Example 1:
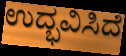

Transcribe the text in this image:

ಉದ್ಭವಿಸಿದೆ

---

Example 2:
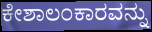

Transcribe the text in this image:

ಕೇಶಾಲಂಕಾರವನ್ನು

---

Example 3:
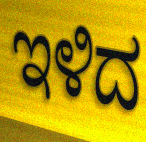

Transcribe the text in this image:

ಇಳಿದ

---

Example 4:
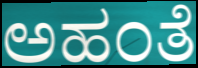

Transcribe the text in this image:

ಅಹಂತೆ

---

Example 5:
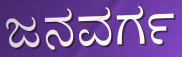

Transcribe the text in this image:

ಜನವರ್ಗ